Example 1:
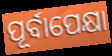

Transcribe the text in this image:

ପୂର୍ବାପେକ୍ଷା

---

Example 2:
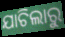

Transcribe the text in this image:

ଯାଚିଲାରୁ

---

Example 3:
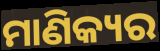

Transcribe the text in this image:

ମାଣିକ୍ୟର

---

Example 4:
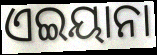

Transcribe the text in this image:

ଏଇୟାନା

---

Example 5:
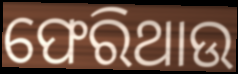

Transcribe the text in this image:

ଫେରିଥାଉ